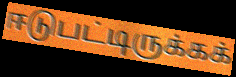
ஈடுபட்டிருக்கக்